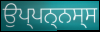
ਉਪ੍ਪਨ੍ਨਸ੍ਸ